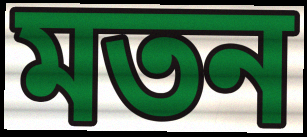
মতন